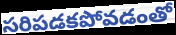
సరిపడకపోవడంతో